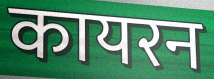
कायरन